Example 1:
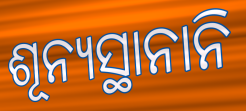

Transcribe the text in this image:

ଶୂନ୍ୟସ୍ଥାନାନି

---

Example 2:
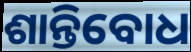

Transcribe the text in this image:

ଶାନ୍ତିବୋଧ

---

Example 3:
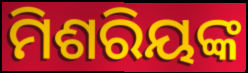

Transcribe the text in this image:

ମିଶରିୟଙ୍କ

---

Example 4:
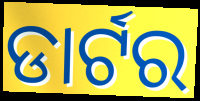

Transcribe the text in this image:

ଡାର୍ଟର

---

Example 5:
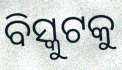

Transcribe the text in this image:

ବିସ୍କୁଟକୁ